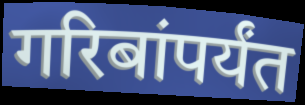
गरिबांपर्यंत